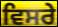
ਵਿਸਰੇ